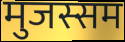
मुजस्सम